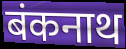
बंकनाथ